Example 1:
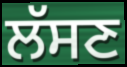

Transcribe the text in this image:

ਲੱਸਣ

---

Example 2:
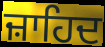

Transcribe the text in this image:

ਜ਼ਾਹਿਦ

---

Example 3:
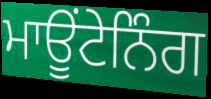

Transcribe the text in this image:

ਮਾਊਂਟੇਨਿੰਗ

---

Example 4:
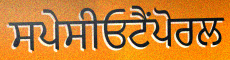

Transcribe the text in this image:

ਸਪੇਸੀਓਟੈਂਪੋਰਲ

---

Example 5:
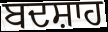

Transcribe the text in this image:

ਬਦਸ਼ਾਹ